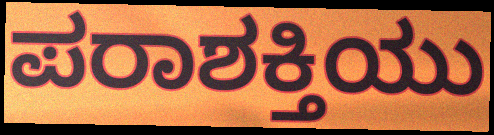
ಪರಾಶಕ್ತಿಯು